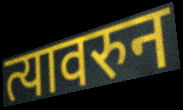
त्यावरुन